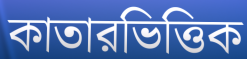
কাতারভিত্তিক